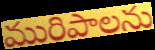
మురిపాలను